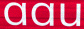
aau